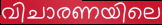
വിചാരണയിലെ